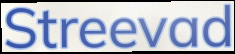
Streevad